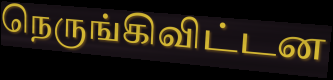
நெருங்கிவிட்டன